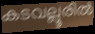
കടവല്ലൂരിൽ